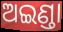
ଅଇଣ୍ଡା